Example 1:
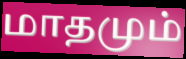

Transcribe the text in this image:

மாதமும்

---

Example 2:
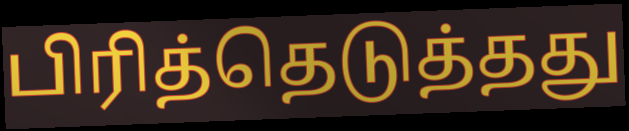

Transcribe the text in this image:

பிரித்தெடுத்தது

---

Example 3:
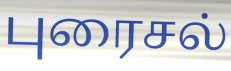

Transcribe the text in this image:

புரைசல்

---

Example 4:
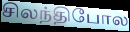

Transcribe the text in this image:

சிலந்திபோல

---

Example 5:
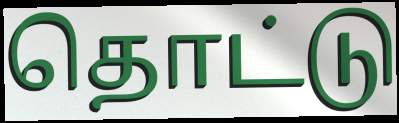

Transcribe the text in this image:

தொட்டு